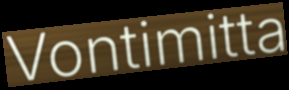
Vontimitta